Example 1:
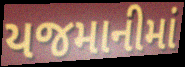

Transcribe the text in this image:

યજમાનીમાં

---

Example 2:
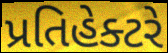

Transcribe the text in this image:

પ્રતિહેક્ટરે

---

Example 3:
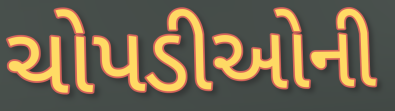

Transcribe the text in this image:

ચોપડીઓની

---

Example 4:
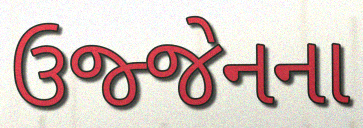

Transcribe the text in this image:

ઉજ્જેનના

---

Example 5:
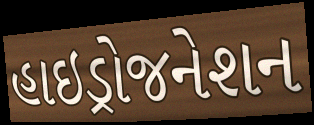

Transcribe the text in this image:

હાઇડ્રોજનેશન